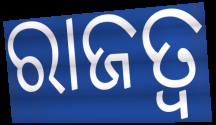
ରାଜତ୍ଵ